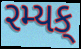
રમ્યક્